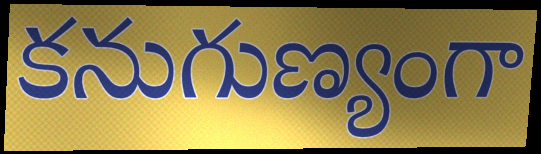
కనుగుణ్యంగా